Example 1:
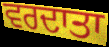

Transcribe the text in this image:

ਵਰਦਾਤਾ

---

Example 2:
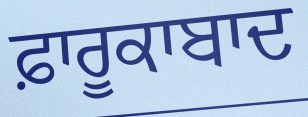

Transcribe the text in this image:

ਫ਼ਾਰੂਕਾਬਾਦ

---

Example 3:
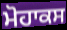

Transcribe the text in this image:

ਮੋਹਾਕਸ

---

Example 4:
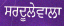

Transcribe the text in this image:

ਸਰਦੂਲੇਵਾਲਾ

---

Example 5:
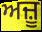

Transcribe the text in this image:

ਅਜ਼ੂ